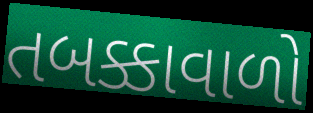
તબક્કાવાળો